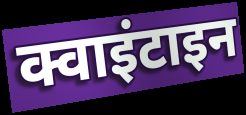
क्वाइंटाइन